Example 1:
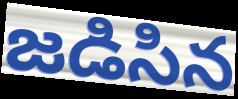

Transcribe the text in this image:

జడిసిన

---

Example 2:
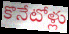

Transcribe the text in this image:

కొనేటోళ్లు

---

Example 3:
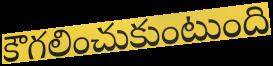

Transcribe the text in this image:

కౌగలించుకుంటుంది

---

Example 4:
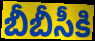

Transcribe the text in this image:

బీబీసీకి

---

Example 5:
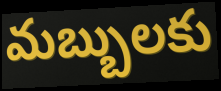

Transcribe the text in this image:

మబ్బులకు